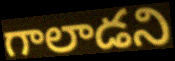
గాలాడని